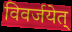
विवर्जयेत्